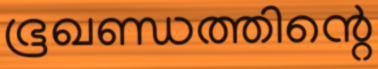
ഭൂഖണ്ഡത്തിന്റെ